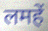
लमहें